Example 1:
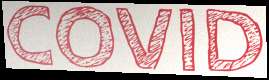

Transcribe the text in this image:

COVID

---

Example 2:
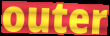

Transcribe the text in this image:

outer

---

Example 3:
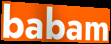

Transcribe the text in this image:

babam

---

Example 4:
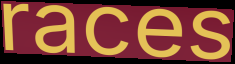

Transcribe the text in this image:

races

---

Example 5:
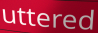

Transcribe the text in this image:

uttered